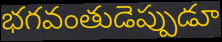
భగవంతుడెప్పుడూ